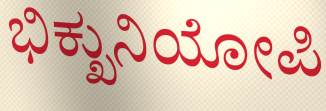
ಭಿಕ್ಖುನಿಯೋಪಿ